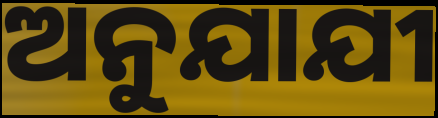
ଅନୁଯାଯୀ